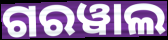
ଗରୱାଲ